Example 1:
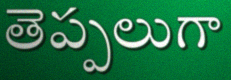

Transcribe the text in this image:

తెప్పలుగా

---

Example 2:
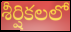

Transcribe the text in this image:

శీర్షికలలో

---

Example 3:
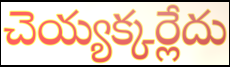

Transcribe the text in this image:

చెయ్యక్కర్లేదు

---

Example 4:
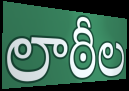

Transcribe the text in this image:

లాఠీల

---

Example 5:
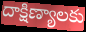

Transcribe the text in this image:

దాక్షిణ్యాలకు